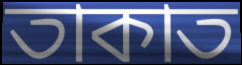
তাকাত